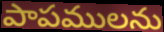
పాపములను